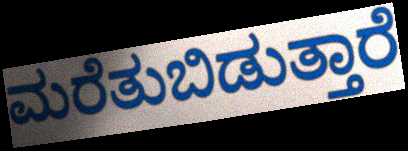
ಮರೆತುಬಿಡುತ್ತಾರೆ